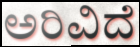
ಅರಿವಿದೆ